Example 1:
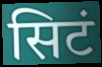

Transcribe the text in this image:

सिटं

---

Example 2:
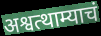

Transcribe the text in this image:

अश्वत्थाम्याचं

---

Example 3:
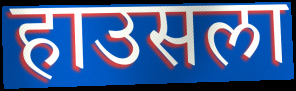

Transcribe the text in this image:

हाउसला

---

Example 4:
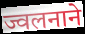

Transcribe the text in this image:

ज्वलनाने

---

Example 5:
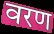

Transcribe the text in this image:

वरण